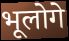
भूलोगे